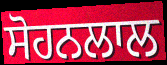
ਸੋਹਨਲਾਲ